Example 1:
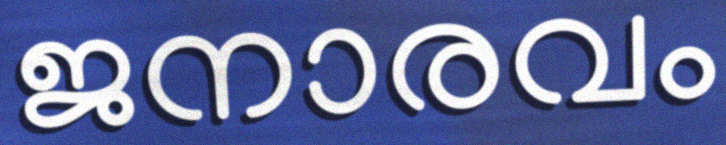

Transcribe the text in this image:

ജനാരവം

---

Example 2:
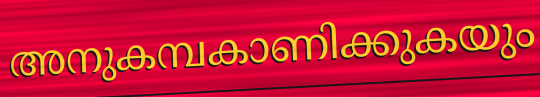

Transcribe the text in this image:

അനുകമ്പകാണിക്കുകയും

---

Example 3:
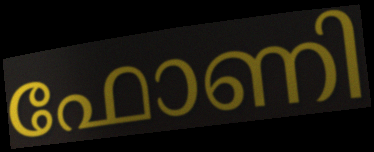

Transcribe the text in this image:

ഫോണി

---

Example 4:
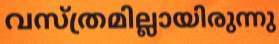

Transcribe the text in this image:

വസ്ത്രമില്ലായിരുന്നു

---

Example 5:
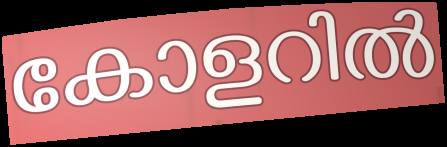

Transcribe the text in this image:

കോളറിൽ